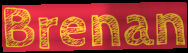
Brenan